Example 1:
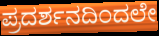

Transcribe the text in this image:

ಪ್ರದರ್ಶನದಿಂದಲೇ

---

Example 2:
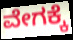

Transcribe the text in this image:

ವೇಗಕ್ಕೆ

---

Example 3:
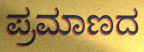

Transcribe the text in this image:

ಪ್ರಮಾಣದ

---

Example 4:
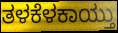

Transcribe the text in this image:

ತಳಕೆಳಕಾಯ್ತು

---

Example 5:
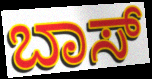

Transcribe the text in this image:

ಬಾಸ್